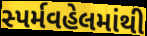
સ્પર્મવહેલમાંથી